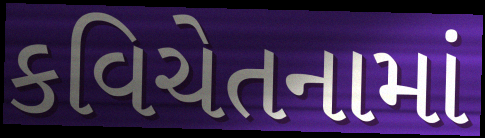
કવિચેતનામાં